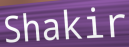
Shakir